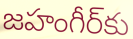
జహంగీర్‌కు